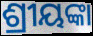
ଶ୍ରୀୟଙ୍କା